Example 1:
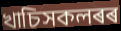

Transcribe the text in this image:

খাচিসকলৰৰ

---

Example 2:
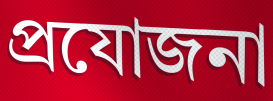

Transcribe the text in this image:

প্ৰযোজনা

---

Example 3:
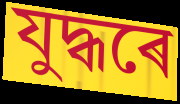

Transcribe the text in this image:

যুদ্ধৰে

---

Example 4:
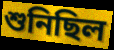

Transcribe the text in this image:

শুনিছিল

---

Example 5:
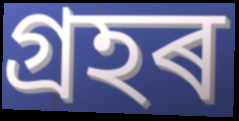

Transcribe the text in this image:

গ্ৰহৰ